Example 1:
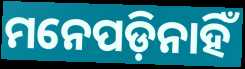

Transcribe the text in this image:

ମନେପଡ଼ିନାହିଁ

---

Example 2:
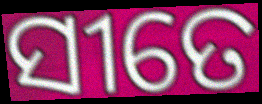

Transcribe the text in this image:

ସୀତେ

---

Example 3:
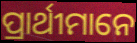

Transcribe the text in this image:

ପ୍ରାର୍ଥୀମାନେ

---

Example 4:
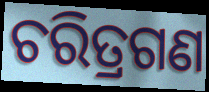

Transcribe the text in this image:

ଚରିତ୍ରଗଣ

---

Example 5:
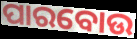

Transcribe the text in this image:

ପାରବୋଉ